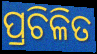
ପ୍ରଚିଳିତ